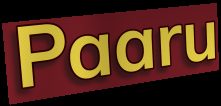
Paaru